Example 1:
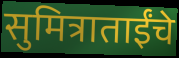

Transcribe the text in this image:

सुमित्राताईंचे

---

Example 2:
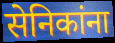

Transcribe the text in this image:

सेनिकांना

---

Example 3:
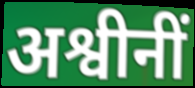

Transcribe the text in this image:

अश्वीनीं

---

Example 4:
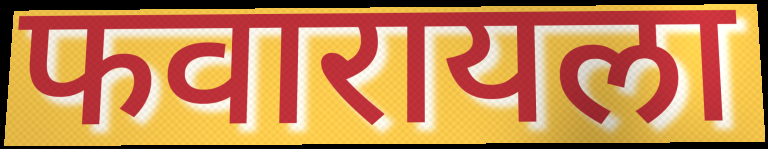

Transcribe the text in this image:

फवारायला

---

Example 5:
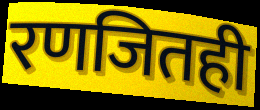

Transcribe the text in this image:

रणजितही